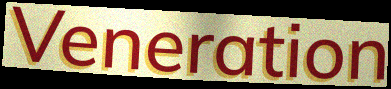
Veneration